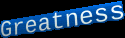
Greatness